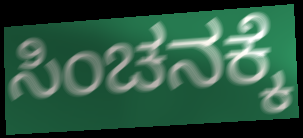
ಸಿಂಚನಕ್ಕೆ